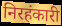
निरहंकारी